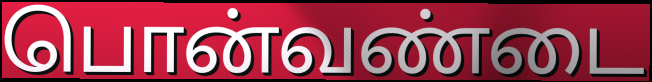
பொன்வண்டை